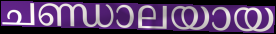
ചണ്ഡാലയായ